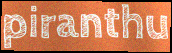
piranthu